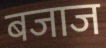
बजाज